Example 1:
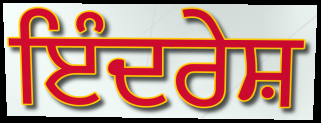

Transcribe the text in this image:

ਇੰਦਰੇਸ਼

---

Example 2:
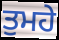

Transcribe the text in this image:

ਤੁਮਹੇ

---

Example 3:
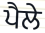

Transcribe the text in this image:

ਪੈਲੇ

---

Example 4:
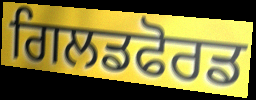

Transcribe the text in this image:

ਗਿਲਡਫੋਰਡ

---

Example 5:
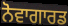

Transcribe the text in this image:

ਨੋਵਾਗਾਰਡ